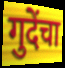
गुदेंचा